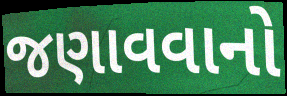
જણાવવાનો